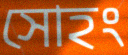
সোহং